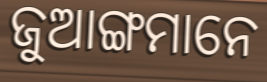
ଜୁଆଙ୍ଗମାନେ